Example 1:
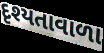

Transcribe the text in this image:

દૃશ્યતાવાળા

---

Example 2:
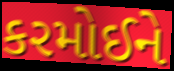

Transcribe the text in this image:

કરમોઈને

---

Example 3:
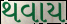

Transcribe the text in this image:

થવાય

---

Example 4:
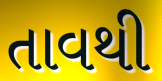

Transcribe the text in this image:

તાવથી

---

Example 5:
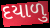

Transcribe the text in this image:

દયાળુ